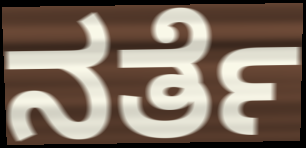
ನರ್ತೆ